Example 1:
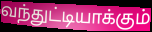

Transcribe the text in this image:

வந்துட்டியாக்கும்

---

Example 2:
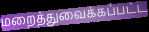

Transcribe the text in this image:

மறைத்துவைக்கப்பட்ட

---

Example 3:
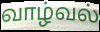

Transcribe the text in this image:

வாழ்வல்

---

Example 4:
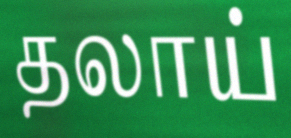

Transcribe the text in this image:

தலாய்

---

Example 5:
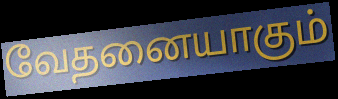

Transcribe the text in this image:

வேதனையாகும்